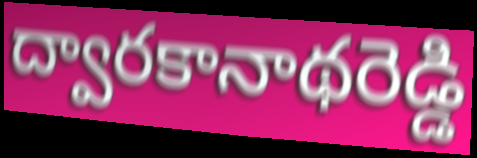
ద్వారకానాథరెడ్డి